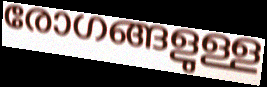
രോഗങ്ങളുള്ള